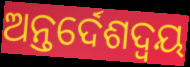
ଅନ୍ତର୍ଦେଶଦ୍ଵୟ